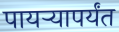
पायऱ्यापर्यंत